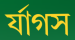
র্যাগস